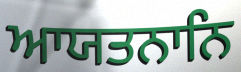
ਆਯਤਨਾਨਿ